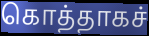
கொத்தாகச்